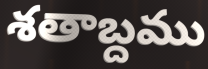
శతాబ్దము